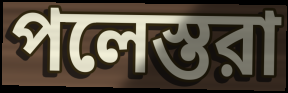
পলেস্তরা